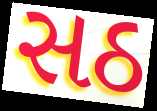
સઠ